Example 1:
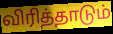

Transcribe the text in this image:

விரித்தாடும்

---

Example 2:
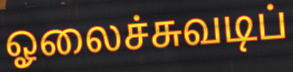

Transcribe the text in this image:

ஓலைச்சுவடிப்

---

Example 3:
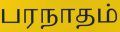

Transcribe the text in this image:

பரநாதம்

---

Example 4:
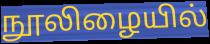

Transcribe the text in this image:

நூலிழையில்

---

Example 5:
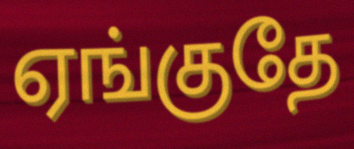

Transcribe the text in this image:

ஏங்குதே